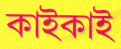
কাইকাই